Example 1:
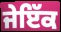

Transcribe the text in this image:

ਜੇਇੱਕ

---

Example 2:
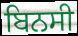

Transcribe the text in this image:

ਬਿਨਸੀ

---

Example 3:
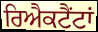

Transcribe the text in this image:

ਰਿਐਕਟੈਂਟਾਂ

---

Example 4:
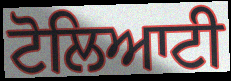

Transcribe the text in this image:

ਟੋਲਿਆਟੀ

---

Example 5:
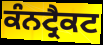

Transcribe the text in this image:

ਕੰਨਟ੍ਰੈਕਟ